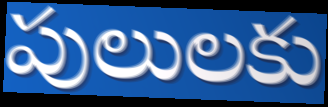
పులులకు